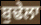
ਬੁਢੇਲਾ